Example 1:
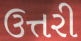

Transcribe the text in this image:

ઉત્તરી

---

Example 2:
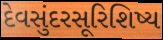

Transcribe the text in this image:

દેવસુંદરસૂરિશિષ્ય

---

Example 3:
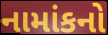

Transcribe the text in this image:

નામાંકનો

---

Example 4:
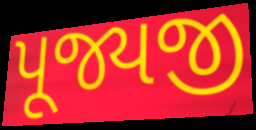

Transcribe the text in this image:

પૂજ્યજી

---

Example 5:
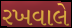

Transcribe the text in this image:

રખવાલે